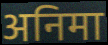
अनिमा